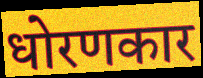
धोरणकार